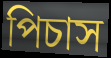
পিচাস